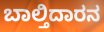
ಬಾಲ್ತಿದಾರನ